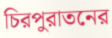
চিরপুরাতনের